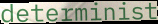
determinist